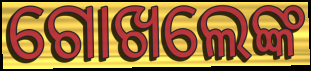
ଗୋଖଲେଙ୍କ